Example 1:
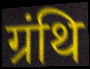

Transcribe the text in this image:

ग्रंथि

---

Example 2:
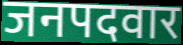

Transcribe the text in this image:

जनपदवार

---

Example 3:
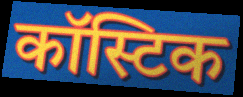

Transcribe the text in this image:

कॉस्टिक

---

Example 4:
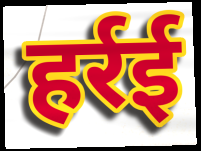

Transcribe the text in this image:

हर्रई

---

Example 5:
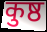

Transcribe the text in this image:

कुष्ठ